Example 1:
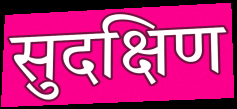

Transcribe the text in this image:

सुदक्षिण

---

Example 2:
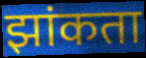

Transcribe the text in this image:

झांकता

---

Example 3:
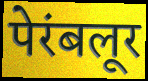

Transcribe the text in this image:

पेरंबलूर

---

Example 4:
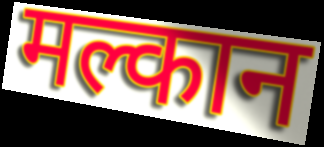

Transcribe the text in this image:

मल्कान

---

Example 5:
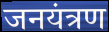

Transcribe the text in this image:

जनयंत्रण